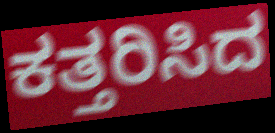
ಕತ್ತರಿಸಿದ